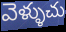
వెళ్ళుచు